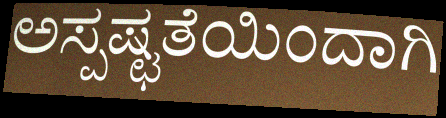
ಅಸ್ಪಷ್ಟತೆಯಿಂದಾಗಿ